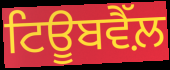
ਟਿਊਬਵੈੱਲ਼